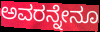
ಅವರನ್ನೇನೂ